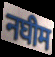
नघीम